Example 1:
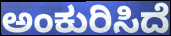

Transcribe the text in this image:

ಅಂಕುರಿಸಿದೆ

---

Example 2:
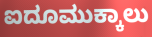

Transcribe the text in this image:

ಐದೂಮುಕ್ಕಾಲು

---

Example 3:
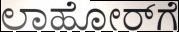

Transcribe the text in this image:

ಲಾಹೋರ್‌ಗೆ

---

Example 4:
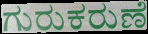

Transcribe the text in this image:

ಗುರುಕರುಣೆ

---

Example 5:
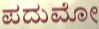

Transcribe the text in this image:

ಪದುಮೋ